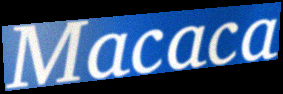
Macaca